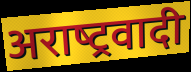
अराष्ट्रवादी